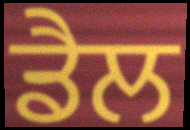
ਡੈਲ